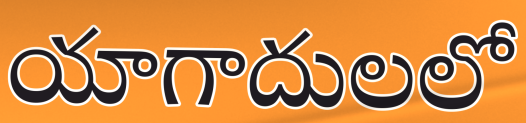
యాగాదులలో